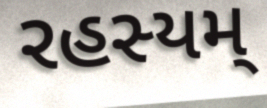
રહસ્યમ્